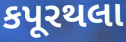
કપૂરથલા